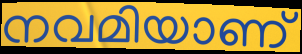
നവമിയാണ്